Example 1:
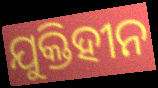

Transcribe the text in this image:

ଯୁକ୍ତିହୀନ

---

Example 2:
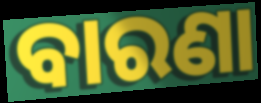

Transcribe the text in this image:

ବାରଣା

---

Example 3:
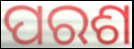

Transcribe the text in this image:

ପରଶ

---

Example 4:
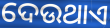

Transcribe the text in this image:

ଦେଉଥାଏ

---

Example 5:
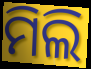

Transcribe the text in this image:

ମିଲି